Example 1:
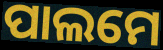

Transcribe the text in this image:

ପାଲମେ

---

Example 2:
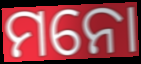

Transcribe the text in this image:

ମନୋ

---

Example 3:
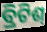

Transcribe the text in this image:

ବ୍ରିଟିଶ୍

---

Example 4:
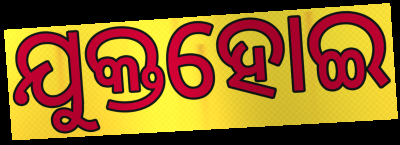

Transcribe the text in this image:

ଯୁକ୍ତହୋଇ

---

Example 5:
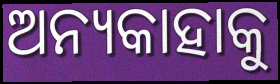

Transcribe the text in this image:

ଅନ୍ୟକାହାକୁ